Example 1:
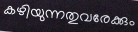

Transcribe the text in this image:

കഴിയുന്നതുവരേക്കും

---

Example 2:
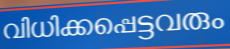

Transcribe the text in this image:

വിധിക്കപ്പെട്ടവരും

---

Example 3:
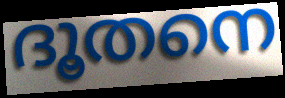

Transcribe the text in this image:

ദൂതനെ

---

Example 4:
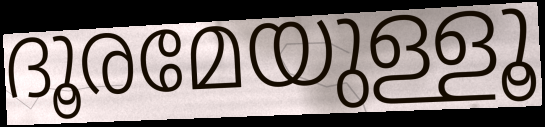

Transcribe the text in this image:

ദൂരമേയുള്ളൂ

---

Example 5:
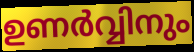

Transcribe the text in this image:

ഉണർവ്വിനും